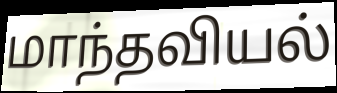
மாந்தவியல்